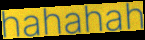
hahahah